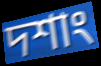
দশাং